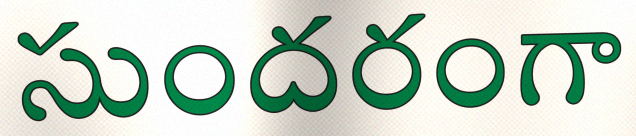
సుందరంగా